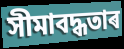
সীমাবদ্ধতাৰ